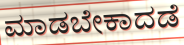
ಮಾಡಬೇಕಾದಡೆ